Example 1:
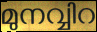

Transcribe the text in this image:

മുനവ്വിറ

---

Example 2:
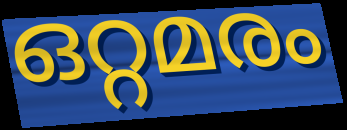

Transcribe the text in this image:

ഒറ്റമരം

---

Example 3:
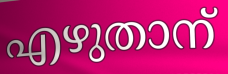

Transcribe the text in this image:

എഴുതാന്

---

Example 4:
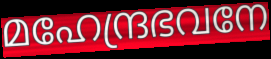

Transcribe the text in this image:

മഹേന്ദ്രഭവനേ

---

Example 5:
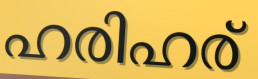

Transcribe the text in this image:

ഹരിഹര്